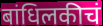
बांधिलकीचं